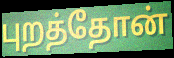
புறத்தோன்